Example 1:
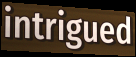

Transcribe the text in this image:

intrigued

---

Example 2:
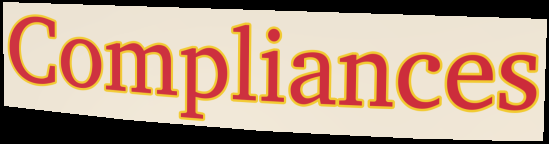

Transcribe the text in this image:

Compliances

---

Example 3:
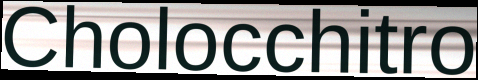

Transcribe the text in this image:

Cholocchitro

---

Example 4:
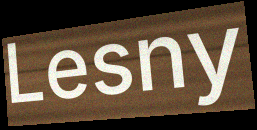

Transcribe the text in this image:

Lesny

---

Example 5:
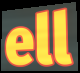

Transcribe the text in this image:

ell